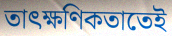
তাৎক্ষণিকতাতেই